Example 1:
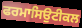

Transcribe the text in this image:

ਫਰਮਾਸਿਉਟੀਕਲ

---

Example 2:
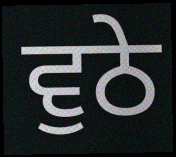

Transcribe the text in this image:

ਵੁਠੇ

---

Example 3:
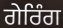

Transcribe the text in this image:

ਗੇਰਿੰਗ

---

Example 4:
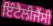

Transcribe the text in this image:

ਇੰਟੈਲੀਜੈਂਸੀ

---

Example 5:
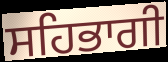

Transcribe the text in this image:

ਸਹਿਭਾਗੀ